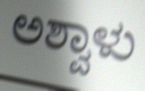
ಅಶ್ವಾಳು